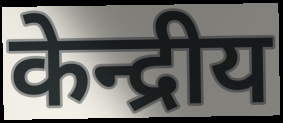
केन्द्रीय